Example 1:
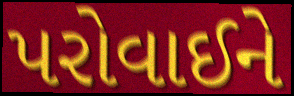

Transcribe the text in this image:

પરોવાઈને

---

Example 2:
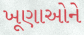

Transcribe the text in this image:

ખૂણાઓને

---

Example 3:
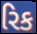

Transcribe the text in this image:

રિક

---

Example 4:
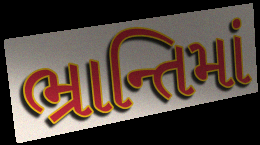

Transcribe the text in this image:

ભ્રાન્તિમાં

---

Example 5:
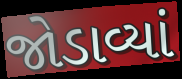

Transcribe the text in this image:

જોડાવ્યાં